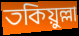
তকিয়ুল্লা